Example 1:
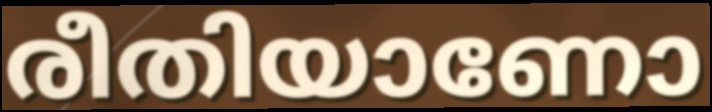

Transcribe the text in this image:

രീതിയാണോ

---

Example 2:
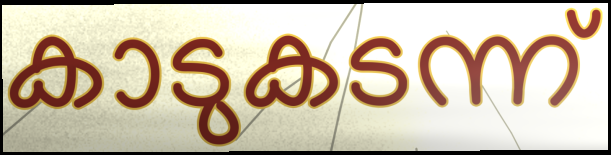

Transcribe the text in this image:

കാടുകടന്ന്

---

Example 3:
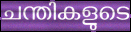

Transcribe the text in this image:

ചന്തികളുടെ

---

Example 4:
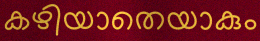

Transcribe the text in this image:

കഴിയാതെയാകും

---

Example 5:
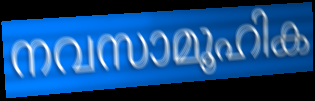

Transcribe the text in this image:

നവസാമൂഹിക